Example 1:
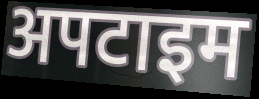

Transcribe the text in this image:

अपटाइम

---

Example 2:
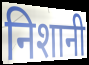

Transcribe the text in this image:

निशानी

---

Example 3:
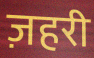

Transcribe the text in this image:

ज़हरी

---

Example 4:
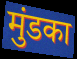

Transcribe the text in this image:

मुंडका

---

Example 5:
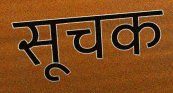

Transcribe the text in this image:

सूचक